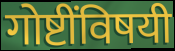
गोष्टींविषयी